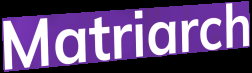
Matriarch